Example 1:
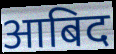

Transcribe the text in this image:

आबिद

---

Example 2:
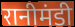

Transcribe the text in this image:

रानीमंडी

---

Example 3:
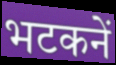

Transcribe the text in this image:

भटकनें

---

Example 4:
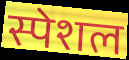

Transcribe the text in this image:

स्पेशल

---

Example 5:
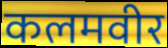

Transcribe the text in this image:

कलमवीर